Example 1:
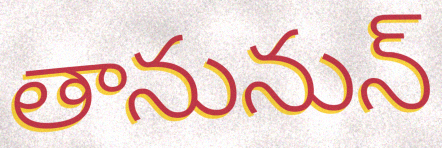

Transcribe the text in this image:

తానునున్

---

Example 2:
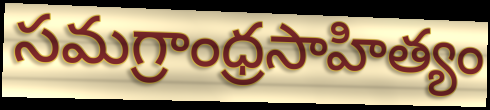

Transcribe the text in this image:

సమగ్రాంధ్రసాహిత్యం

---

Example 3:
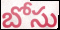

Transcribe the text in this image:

బోసు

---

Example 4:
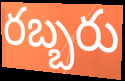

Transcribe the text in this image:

రబ్బరు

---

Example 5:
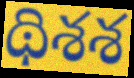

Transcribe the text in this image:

థిశశ